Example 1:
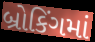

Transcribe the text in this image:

બ્રોકિંગમાં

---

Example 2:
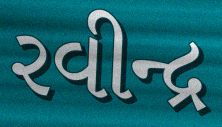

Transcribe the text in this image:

રવીન્દ્ર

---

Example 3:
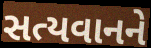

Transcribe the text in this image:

સત્યવાનને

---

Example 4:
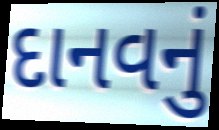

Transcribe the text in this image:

દાનવનું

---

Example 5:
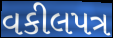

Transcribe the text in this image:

વકીલપત્ર